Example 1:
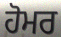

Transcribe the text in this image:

ਹੋਮਰ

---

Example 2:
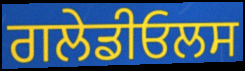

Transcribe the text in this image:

ਗਲੇਡੀਓਲਸ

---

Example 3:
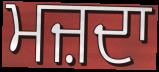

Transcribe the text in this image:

ਮਜ਼ਦਾ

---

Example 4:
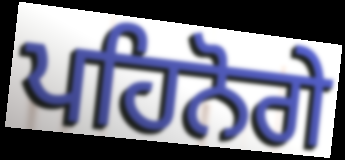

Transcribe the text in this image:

ਪਹਿਨੋਗੇ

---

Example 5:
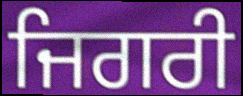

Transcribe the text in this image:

ਜਿਗਰੀ